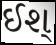
ઈશ્